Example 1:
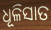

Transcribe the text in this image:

ଧୂଳିସାତ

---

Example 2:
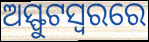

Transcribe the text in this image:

ଅସ୍ଫୁଟସ୍ୱରରେ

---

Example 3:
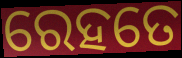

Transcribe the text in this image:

ରେହତେ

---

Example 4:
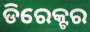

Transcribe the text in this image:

ଡିରେକ୍ଟର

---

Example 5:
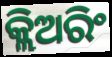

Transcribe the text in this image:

କ୍ଲିଅରିଂ